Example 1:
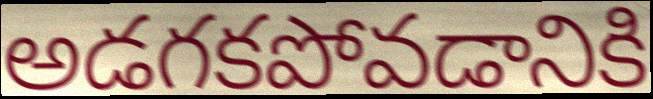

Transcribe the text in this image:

అడగకపోవడానికి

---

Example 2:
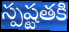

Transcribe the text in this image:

స్పష్టతకి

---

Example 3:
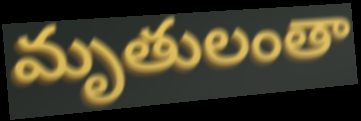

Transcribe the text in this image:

మృతులంతా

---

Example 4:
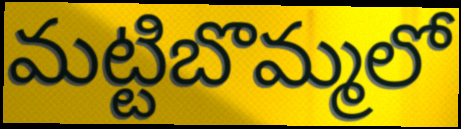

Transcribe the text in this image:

మట్టిబొమ్మలో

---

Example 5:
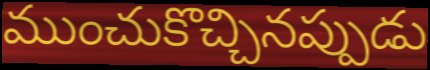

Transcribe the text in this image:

ముంచుకొచ్చినప్పుడు